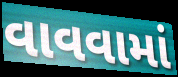
વાવવામાં